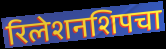
रिलेशनशिपचा